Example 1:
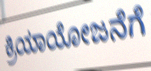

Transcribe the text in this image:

ಕ್ರಿಯಾಯೋಜನೆಗೆ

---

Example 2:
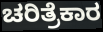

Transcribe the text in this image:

ಚರಿತ್ರೆಕಾರ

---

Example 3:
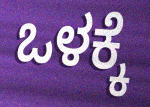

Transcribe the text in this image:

ಒಳಕ್ಕೆ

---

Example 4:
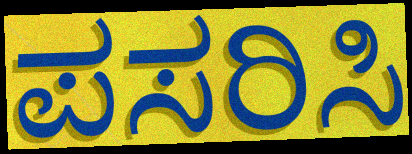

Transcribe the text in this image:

ಪಸರಿಸಿ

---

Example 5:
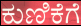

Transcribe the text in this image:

ಕುಣಿಕೆಗೆ